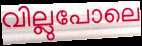
വില്ലുപോലെ